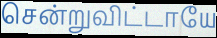
சென்றுவிட்டாயே